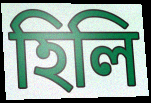
হিলি